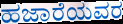
ಹಜಾರೆಯವರ